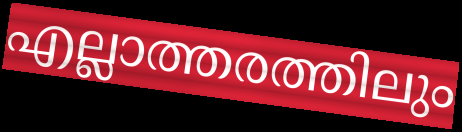
എല്ലാത്തരത്തിലും